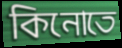
কিনোতে